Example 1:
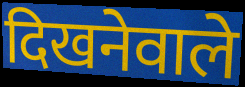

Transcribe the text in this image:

दिखनेवाले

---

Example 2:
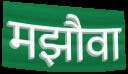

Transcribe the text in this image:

मझौवा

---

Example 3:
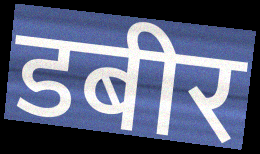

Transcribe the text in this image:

डबीर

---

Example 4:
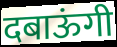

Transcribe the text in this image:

दबाऊंगी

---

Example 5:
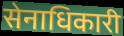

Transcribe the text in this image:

सेनाधिकारी